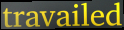
travailed